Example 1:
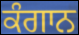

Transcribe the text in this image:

ਕੰਗਾਨ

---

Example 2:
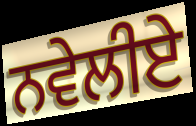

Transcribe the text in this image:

ਨਵੇਲੀਏ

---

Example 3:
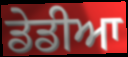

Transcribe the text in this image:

ਡੇਡੀਆ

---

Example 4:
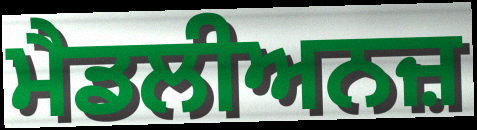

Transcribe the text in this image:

ਮੈਡਲੀਅਨਜ਼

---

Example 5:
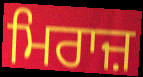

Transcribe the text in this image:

ਮਿਰਾਜ਼